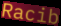
Racib